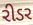
રીડર